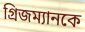
গ্রিজম্যানকে